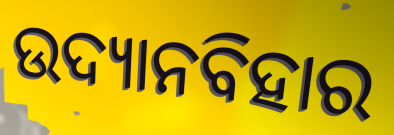
ଉଦ୍ୟାନବିହାର